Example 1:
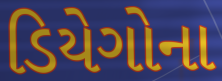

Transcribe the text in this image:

ડિયેગોના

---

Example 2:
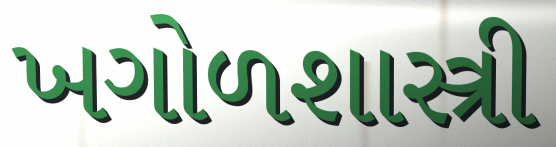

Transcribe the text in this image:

ખગોળશાસ્ત્રી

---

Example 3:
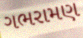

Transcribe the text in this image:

ગભરામણ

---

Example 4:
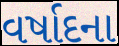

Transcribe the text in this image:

વર્ષાદના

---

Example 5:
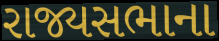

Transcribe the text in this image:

રાજ્યસભાના